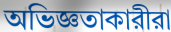
অভিজ্ঞতাকারীরা